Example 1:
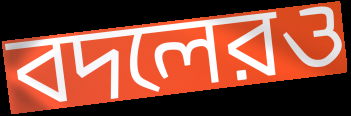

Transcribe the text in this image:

বদলেরও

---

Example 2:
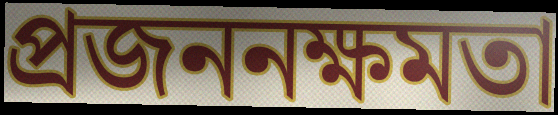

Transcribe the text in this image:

প্রজননক্ষমতা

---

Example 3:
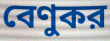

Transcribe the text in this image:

বেণুকর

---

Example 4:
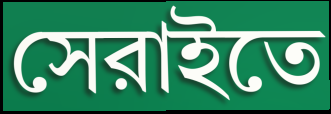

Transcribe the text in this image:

সেরাইতে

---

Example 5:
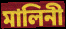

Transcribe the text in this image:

মালিনী